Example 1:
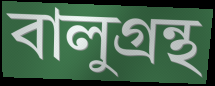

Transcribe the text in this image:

বালুগ্রন্থ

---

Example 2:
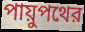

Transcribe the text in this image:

পায়ুপথের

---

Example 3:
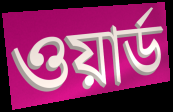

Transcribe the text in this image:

ওয়ার্ড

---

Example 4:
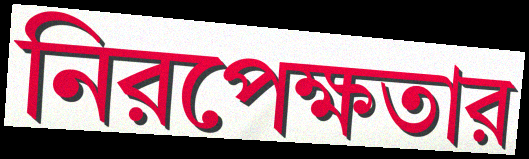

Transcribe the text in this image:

নিরপেক্ষতার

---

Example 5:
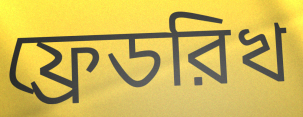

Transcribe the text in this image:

ফ্রেডরিখ